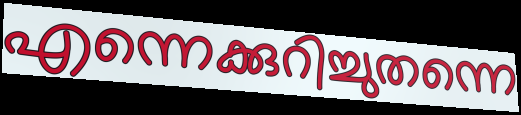
എന്നെക്കുറിച്ചുതന്നെ